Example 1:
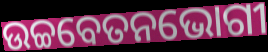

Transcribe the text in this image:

ଉଚ୍ଚବେତନଭୋଗୀ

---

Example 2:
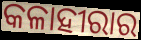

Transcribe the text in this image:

କଳାହୀରାର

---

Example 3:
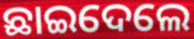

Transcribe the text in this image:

ଛାଇଦେଲେ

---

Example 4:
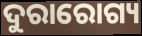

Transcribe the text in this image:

ଦୁରାରୋଗ୍ୟ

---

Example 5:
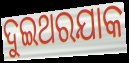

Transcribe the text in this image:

ଦୁଇଥରଯାକ